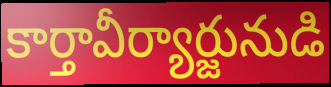
కార్తావీర్యార్జునుడి